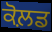
ਕੋਲ਼ਡ